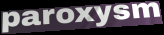
paroxysm